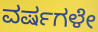
ವರ್ಷಗಳೇ